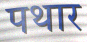
पथार